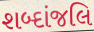
શબ્દાંજલિ